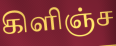
கிளிஞ்ச